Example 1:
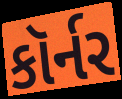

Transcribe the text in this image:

કૉર્નર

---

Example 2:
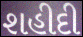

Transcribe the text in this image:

શહીદી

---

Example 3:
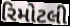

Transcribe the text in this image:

રિમોટલી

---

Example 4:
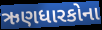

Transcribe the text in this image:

ઋણધારકોના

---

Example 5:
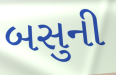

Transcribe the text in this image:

બસુની